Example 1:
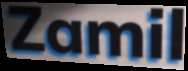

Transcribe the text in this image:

Zamil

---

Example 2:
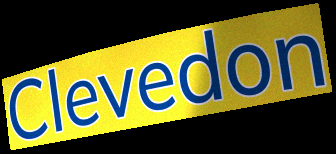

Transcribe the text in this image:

Clevedon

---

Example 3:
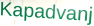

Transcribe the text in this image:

Kapadvanj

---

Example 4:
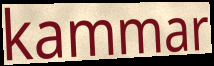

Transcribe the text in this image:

kammar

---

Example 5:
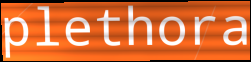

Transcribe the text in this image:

plethora